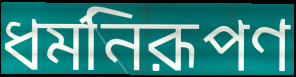
ধর্মনিরূপণ